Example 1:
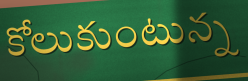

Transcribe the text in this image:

కోలుకుంటున్న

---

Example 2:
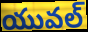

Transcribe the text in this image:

యువల్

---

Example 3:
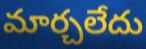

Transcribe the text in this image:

మార్చలేదు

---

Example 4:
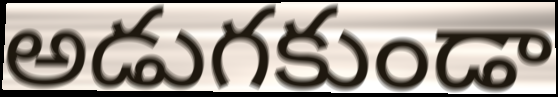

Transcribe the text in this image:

అడుగకుండా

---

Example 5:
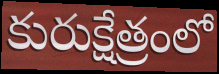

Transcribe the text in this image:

కురుక్షేత్రంలో